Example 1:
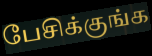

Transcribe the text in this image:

பேசிக்குங்க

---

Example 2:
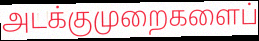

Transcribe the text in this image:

அடக்குமுறைகளைப்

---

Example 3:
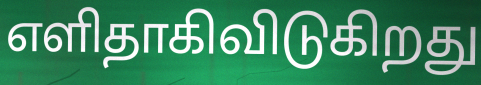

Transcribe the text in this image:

எளிதாகிவிடுகிறது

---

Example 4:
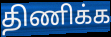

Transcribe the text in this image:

திணிக்க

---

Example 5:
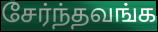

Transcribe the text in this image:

சேர்ந்தவங்க